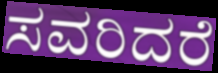
ಸವರಿದರೆ